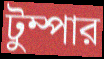
টুম্পার